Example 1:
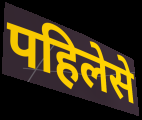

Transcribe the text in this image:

पहिलेसे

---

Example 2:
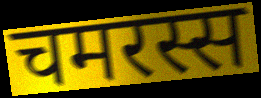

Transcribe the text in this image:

चमरस्स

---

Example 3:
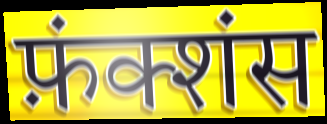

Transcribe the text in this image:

फ़ंक्शंस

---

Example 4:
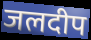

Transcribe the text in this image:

जलदीप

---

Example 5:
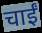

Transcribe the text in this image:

चाईं